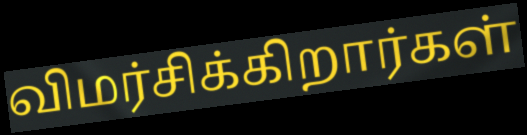
விமர்சிக்கிறார்கள்